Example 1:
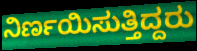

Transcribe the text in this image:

ನಿರ್ಣಯಿಸುತ್ತಿದ್ದರು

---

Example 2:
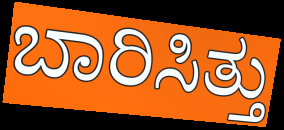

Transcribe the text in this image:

ಬಾರಿಸಿತ್ತು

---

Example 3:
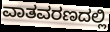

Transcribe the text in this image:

ವಾತವರಣದಲ್ಲಿ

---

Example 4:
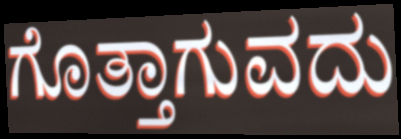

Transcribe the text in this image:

ಗೊತ್ತಾಗುವದು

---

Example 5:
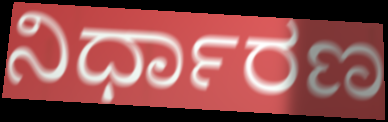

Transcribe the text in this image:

ನಿರ್ಧಾರಣ